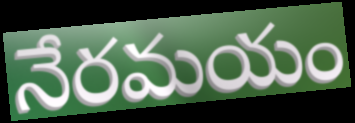
నేరమయం